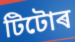
টিটোৰ